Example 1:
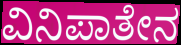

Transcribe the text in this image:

ವಿನಿಪಾತೇನ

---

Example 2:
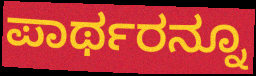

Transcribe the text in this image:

ಪಾರ್ಥರನ್ನೂ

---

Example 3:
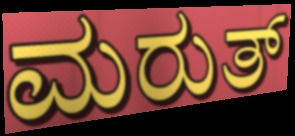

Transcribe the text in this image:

ಮರುತ್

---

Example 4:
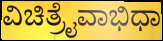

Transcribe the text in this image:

ವಿಚಿತ್ರೈವಾಭಿಧಾ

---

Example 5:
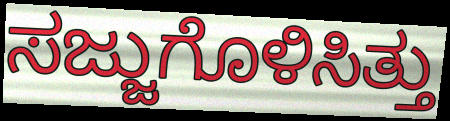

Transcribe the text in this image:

ಸಜ್ಜುಗೊಳಿಸಿತ್ತು